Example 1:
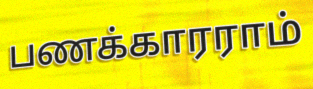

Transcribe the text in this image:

பணக்காரராம்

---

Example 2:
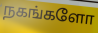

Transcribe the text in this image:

நகங்களோ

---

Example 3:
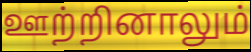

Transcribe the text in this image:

ஊற்றினாலும்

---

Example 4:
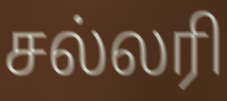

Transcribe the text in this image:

சல்லரி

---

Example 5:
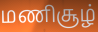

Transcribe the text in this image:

மணிசூழ்